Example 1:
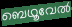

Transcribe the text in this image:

ബെഥൂവേൽ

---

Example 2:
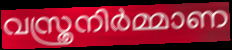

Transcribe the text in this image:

വസ്ത്രനിർമ്മാണ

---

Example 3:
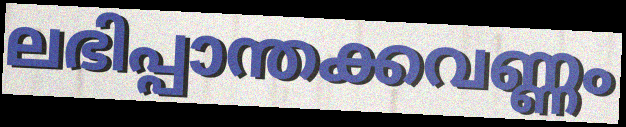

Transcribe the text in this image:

ലഭിപ്പാന്തക്കവണ്ണം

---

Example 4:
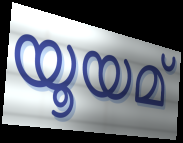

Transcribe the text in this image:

യൂയമ്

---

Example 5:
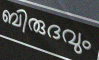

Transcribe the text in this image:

ബിരുദവും